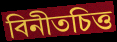
বিনীতচিত্ত